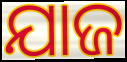
ଯାଜ